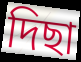
দিছা